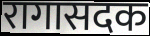
रागासदक